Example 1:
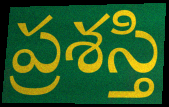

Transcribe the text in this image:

ప్రశస్తి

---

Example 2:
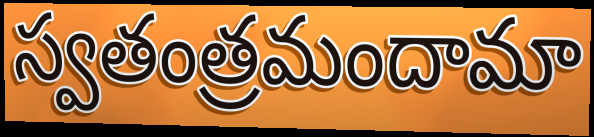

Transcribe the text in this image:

స్వతంత్రమందామా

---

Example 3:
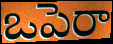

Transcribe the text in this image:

ఒపెరా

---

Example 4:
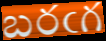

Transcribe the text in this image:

బరఁగ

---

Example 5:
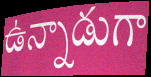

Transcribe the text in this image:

ఉన్నాడుగా